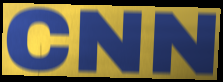
CNN